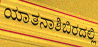
ಯಾತನಾಶಿಬಿರದಲ್ಲಿ